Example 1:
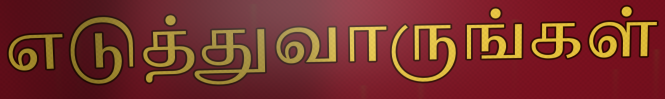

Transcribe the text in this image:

எடுத்துவாருங்கள்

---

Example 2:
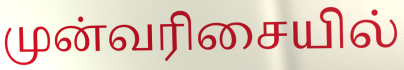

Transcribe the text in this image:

முன்வரிசையில்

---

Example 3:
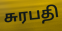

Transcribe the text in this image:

சுரபதி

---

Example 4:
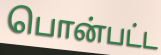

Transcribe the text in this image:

பொன்பட்ட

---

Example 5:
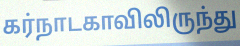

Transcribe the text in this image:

கர்நாடகாவிலிருந்து